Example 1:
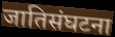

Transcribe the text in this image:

जातिसंघटना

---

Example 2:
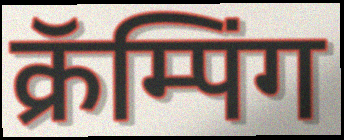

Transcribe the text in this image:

क्रॅम्पिंग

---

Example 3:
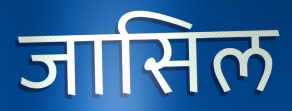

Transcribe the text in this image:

जासिल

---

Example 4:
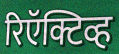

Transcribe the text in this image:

रिऍक्टिव्ह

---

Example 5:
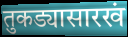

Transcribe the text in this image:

तुकड्यासारखं